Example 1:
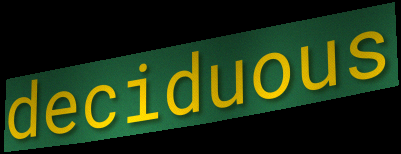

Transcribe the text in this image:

deciduous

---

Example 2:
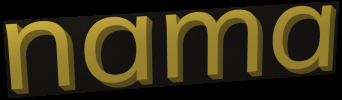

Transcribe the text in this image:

nama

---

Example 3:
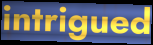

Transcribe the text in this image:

intrigued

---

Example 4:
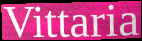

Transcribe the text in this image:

Vittaria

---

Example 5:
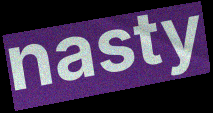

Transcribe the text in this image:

nasty